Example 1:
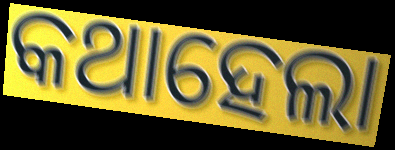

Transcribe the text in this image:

କଥାହେଲା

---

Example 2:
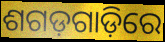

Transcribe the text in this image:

ଶଗଡ଼ଗାଡ଼ିରେ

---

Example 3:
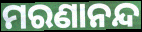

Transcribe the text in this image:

ମରଣାନନ୍ଦ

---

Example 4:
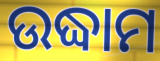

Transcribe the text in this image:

ଉଦ୍ଧାମ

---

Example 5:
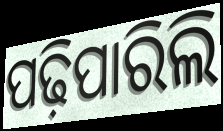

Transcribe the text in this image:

ପଢ଼ିପାରିଲି